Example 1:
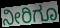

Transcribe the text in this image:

ನೀರಿಗೂ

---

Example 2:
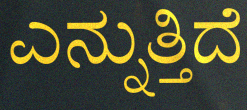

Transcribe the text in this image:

ಎನ್ನುತ್ತಿದೆ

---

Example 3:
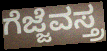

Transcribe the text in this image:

ಗೆಜ್ಜೆವಸ್ತ್ರ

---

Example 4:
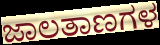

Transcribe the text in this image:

ಜಾಲತಾಣಗಳ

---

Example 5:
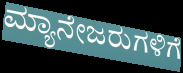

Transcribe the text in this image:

ಮ್ಯಾನೇಜರುಗಳಿಗೆ